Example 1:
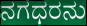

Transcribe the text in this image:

ನಗಧರನು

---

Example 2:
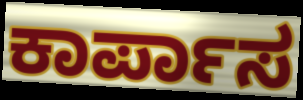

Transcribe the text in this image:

ಕಾರ್ಪಾಸ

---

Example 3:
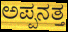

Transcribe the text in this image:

ಅಪ್ಪನತ್ತ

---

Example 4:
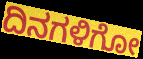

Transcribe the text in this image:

ದಿನಗಳಿಗೋ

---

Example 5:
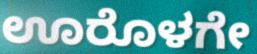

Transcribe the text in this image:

ಊರೊಳಗೇ